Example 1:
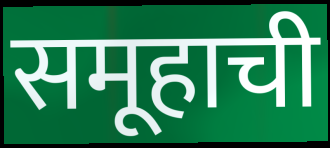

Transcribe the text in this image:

समूहाची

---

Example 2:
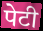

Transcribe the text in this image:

पेटी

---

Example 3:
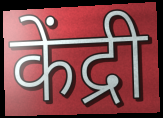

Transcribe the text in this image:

केंद्री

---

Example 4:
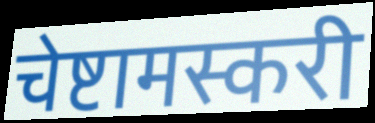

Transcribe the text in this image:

चेष्टामस्करी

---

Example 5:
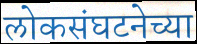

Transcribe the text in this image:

लोकसंघटनेच्या